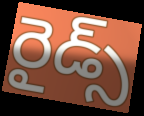
రైడ్స్